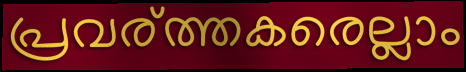
പ്രവര്ത്തകരെല്ലാം